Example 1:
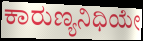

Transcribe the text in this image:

ಕಾರುಣ್ಯನಿಧಿಯೇ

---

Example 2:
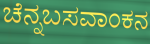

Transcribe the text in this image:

ಚೆನ್ನಬಸವಾಂಕನ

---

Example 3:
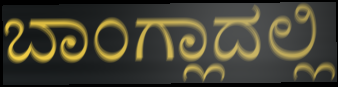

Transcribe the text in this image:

ಬಾಂಗ್ಲಾದಲ್ಲಿ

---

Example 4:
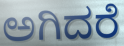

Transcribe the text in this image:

ಅಗಿದರೆ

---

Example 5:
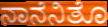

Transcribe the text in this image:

ನಾನೆನಿತೊ